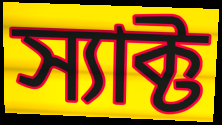
স্যাক্ট